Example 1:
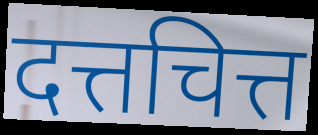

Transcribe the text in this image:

दत्तचित्त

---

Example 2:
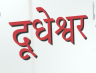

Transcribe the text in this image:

दूधेश्वर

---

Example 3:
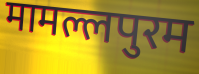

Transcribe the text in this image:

मामल्लपुरम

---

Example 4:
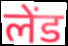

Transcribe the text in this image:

लेंड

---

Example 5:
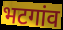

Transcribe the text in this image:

भटगांव